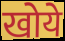
खोये